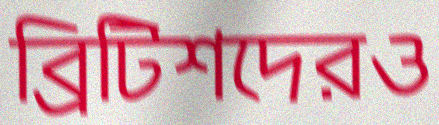
ব্রিটিশদেরও